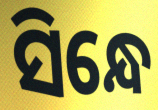
ସିନ୍ଧେ